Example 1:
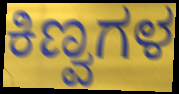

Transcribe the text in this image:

ಕಿಣ್ವಗಳ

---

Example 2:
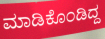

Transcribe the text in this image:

ಮಾಡಿಕೊಂಡಿದ್ದ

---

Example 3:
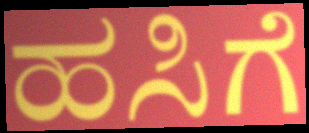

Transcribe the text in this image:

ಹಸಿಗೆ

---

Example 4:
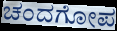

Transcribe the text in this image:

ಚಂದಗೋಪ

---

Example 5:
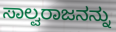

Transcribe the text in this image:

ಸಾಲ್ವರಾಜನನ್ನು